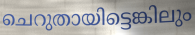
ചെറുതായിട്ടെങ്കിലും